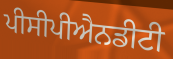
ਪੀਸੀਪੀਐਨਡੀਟੀ